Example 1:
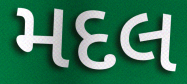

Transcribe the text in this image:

મદલ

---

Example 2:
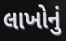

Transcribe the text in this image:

લાખોનું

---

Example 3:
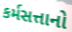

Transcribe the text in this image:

કર્મસત્તાનો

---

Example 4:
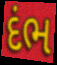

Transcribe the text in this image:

દંભ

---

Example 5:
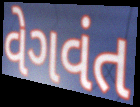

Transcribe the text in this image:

વેગવંત